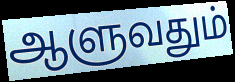
ஆளுவதும்